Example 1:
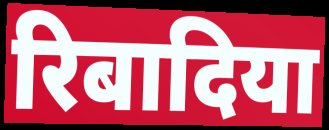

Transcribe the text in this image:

रिबादिया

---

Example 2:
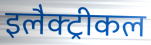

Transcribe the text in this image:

इलैक्ट्रीकल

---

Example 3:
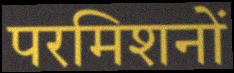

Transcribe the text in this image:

परमिशनों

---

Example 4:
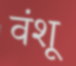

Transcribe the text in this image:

वंशू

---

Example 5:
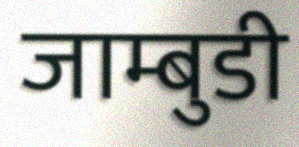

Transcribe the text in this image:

जाम्बुडी